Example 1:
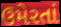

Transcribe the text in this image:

ઉમેરતાં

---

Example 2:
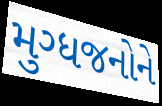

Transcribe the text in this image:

મુગ્ધજનોને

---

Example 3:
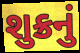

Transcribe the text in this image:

શુક્રનું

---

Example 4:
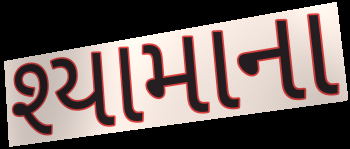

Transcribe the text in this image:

શ્યામાના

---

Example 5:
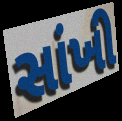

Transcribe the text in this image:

સાંખી